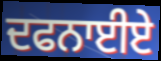
ਦਫਨਾਈਏ